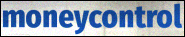
moneycontrol